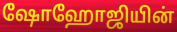
ஷோஹோஜியின்